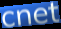
cnet